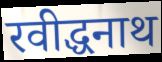
रवीद्धनाथ